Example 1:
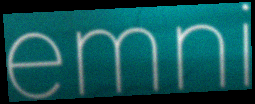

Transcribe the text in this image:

emni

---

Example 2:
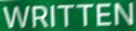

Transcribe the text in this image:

WRITTEN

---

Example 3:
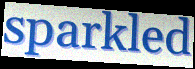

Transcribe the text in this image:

sparkled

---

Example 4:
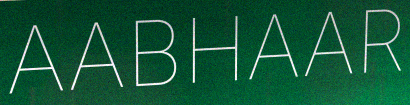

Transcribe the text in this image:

AABHAAR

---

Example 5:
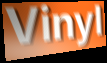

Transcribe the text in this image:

Vinyl